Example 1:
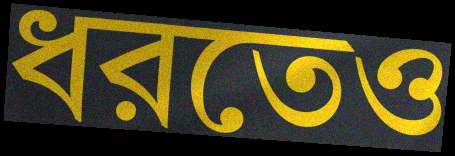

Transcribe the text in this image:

ধরতেও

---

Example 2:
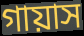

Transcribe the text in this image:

গায়াস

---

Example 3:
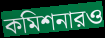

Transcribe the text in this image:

কমিশনারও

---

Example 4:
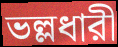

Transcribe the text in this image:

ভল্লধারী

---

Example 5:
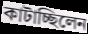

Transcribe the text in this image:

কাটাচ্ছিলেন